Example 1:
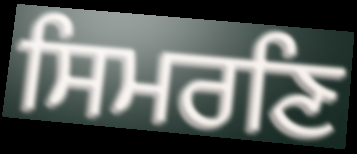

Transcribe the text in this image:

ਸਿਮਰਣਿ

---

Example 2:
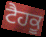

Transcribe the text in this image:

ਟੈਹਕੂ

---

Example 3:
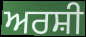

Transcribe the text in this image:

ਅਰਸ਼ੀ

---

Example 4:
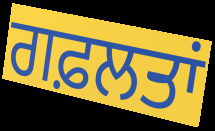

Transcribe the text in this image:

ਗਫ਼ਲਤਾਂ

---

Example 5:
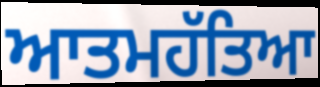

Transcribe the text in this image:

ਆਤਮਹੱਤਿਆ